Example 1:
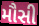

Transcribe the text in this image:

મૌસી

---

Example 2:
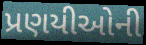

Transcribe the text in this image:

પ્રણયીઓની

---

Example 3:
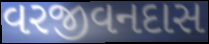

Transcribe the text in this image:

વરજીવનદાસ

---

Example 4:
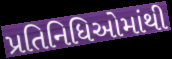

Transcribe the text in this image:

પ્રતિનિધિઓમાંથી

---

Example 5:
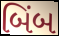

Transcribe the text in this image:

બિંબ